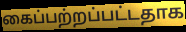
கைப்பற்றப்பட்டதாக